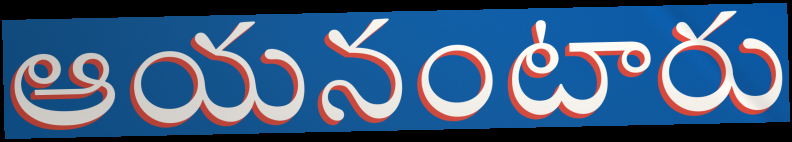
ఆయనంటారు